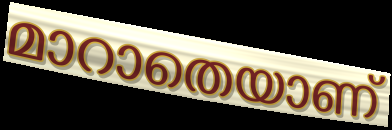
മാറാതെയാണ്